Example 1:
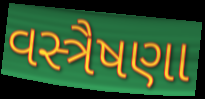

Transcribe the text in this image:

વસ્ત્રૈષણા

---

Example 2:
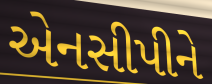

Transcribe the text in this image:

એનસીપીને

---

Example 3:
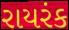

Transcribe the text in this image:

રાયરંક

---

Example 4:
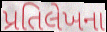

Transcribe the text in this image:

પ્રતિલેખના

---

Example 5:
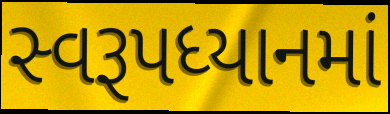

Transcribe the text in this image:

સ્વરૂપધ્યાનમાં